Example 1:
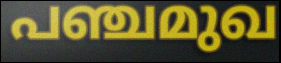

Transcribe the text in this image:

പഞ്ചമുഖ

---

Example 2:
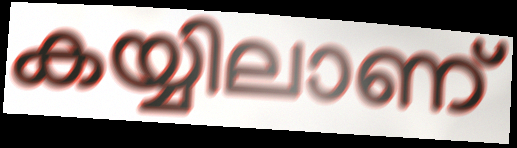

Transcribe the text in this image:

കയ്യിലാണ്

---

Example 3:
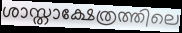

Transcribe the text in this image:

ശാസ്താക്ഷേത്രത്തിലെ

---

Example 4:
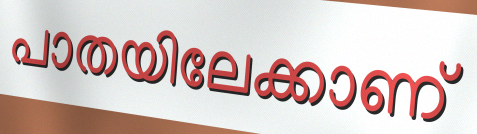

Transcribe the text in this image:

പാതയിലേക്കാണ്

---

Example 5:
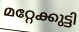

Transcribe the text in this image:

മറ്റേക്കുട്ടി